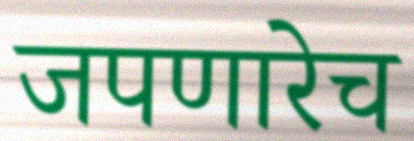
जपणारेच